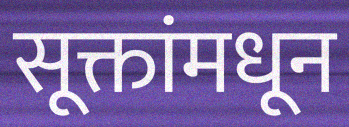
सूक्तांमधून